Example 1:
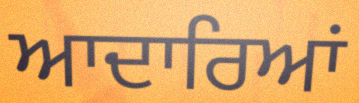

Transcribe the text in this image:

ਆਦਾਰਿਆਂ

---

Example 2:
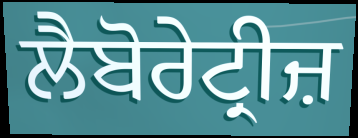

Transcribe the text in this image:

ਲੈਬੋਰੇਟ੍ਰੀਜ਼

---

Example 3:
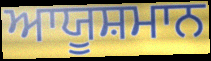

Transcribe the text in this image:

ਆਯੂਸ਼ਮਾਨ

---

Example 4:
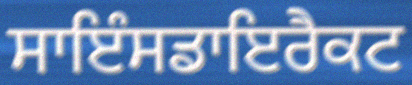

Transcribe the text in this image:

ਸਾਇੰਸਡਾਇਰੈਕਟ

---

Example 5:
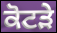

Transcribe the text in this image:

ਕੋਟੜੇ